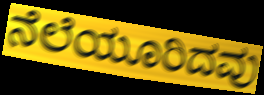
ನೆಲೆಯೂರಿದವು